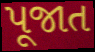
પૂજાત